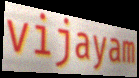
vijayam